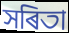
সৰিতা